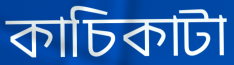
কাচিকাটা